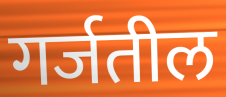
गर्जतील